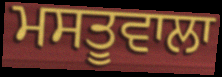
ਮਸਤੂਵਾਲਾ